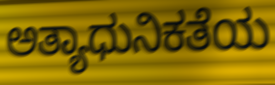
ಅತ್ಯಾಧುನಿಕತೆಯ